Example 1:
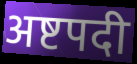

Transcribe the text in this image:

अष्टपदी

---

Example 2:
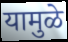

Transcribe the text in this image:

यामुळे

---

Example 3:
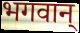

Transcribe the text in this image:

भगवान्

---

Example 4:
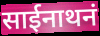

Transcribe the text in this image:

साईनाथनं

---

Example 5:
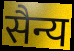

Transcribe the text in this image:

सैन्य